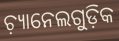
ଚ଼୍ୟାନେଲଗୁଡ଼ିକ